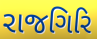
રાજગિરિ